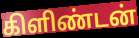
கிளிண்டன்